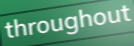
throughout